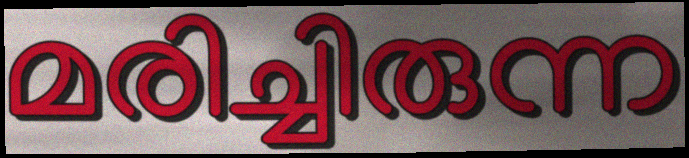
മരിച്ചിരുന്ന